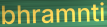
bhramnti